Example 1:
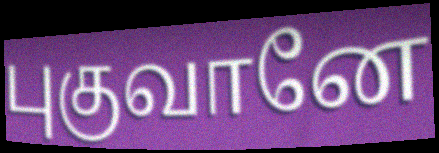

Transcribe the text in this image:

புகுவானே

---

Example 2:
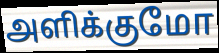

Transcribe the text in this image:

அளிக்குமோ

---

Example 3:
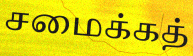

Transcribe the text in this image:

சமைக்கத்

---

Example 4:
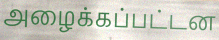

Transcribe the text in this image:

அழைக்கப்பட்டன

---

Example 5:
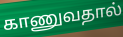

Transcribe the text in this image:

காணுவதால்